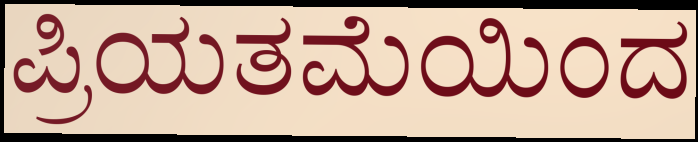
ಪ್ರಿಯತಮೆಯಿಂದ